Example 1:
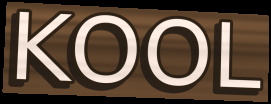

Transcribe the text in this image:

KOOL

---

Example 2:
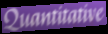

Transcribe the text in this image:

Quantitative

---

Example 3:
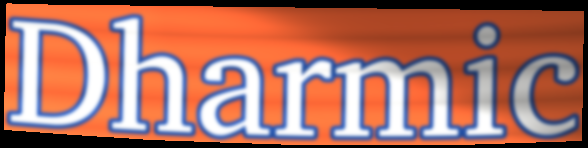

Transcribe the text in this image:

Dharmic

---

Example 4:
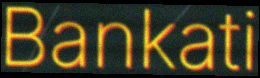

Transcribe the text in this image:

Bankati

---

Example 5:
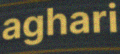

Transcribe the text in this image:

aghari